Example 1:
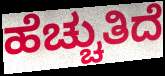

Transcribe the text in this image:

ಹೆಚ್ಚುತಿದೆ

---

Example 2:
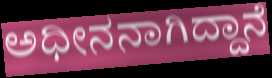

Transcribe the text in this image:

ಅಧೀನನಾಗಿದ್ದಾನೆ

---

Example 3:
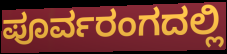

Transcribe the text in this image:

ಪೂರ್ವರಂಗದಲ್ಲಿ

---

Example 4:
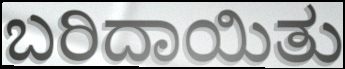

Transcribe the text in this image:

ಬರಿದಾಯಿತು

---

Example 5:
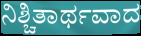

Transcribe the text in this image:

ನಿಶ್ಚಿತಾರ್ಥವಾದ